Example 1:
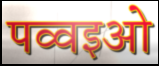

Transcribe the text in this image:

पव्वइओ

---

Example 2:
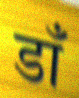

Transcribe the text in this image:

डॉं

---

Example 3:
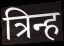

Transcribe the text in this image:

त्रिन्ह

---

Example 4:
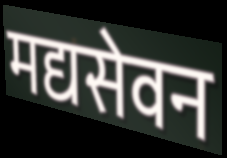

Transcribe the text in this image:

मद्यसेवन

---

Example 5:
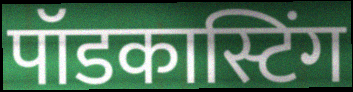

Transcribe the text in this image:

पॉडकास्टिंग